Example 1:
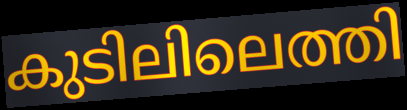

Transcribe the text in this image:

കുടിലിലെത്തി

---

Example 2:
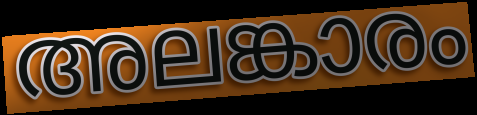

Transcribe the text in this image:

അലങ്കാരം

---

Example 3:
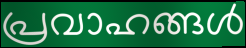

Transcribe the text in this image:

പ്രവാഹങ്ങൾ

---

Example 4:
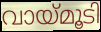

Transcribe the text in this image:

വായ്മൂടി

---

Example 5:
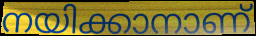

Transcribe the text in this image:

നയിക്കാനാണ്